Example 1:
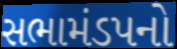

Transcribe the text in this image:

સભામંડપનો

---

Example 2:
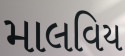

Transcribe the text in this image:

માલવિય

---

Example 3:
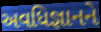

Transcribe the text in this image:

અવધિજ્ઞાનને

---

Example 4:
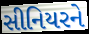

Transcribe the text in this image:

સીનિયરને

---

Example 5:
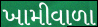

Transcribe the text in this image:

ખામીવાળા